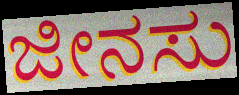
ಜೀನಸು